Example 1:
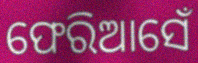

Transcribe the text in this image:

ଫେରିଆସେଁ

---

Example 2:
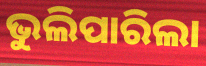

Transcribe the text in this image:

ଭୁଲିପାରିଲା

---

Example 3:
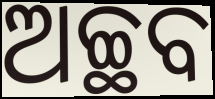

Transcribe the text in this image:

ଅଚ୍ଛବ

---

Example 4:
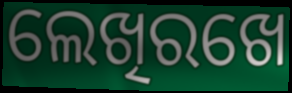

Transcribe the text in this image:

ଲେଖିରଖେ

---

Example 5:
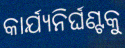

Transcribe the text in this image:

କାର୍ଯ୍ୟନିର୍ଘଣ୍ଟକୁ